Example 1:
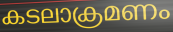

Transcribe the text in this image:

കടലാക്രമണം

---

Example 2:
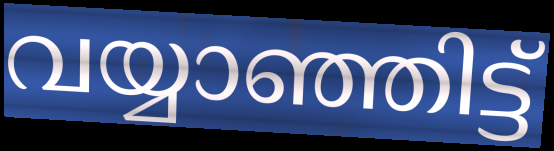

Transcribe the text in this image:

വയ്യാഞ്ഞിട്ട്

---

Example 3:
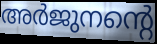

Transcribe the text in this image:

അർജുനന്റെ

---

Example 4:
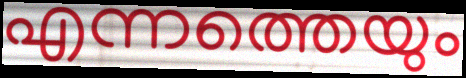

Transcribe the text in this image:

എന്നത്തെയും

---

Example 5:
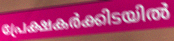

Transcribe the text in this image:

പ്രേക്ഷകർക്കിടയിൽ